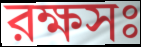
রক্ষসঃ